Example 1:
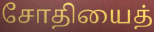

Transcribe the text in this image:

சோதியைத்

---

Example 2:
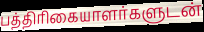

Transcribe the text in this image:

பத்திரிகையாளர்களுடன்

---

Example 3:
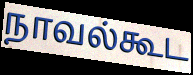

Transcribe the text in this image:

நாவல்கூட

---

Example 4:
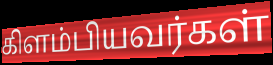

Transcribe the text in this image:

கிளம்பியவர்கள்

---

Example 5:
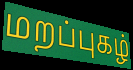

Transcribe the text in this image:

மறப்புகழ்